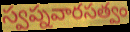
స్వప్నవారసత్వం